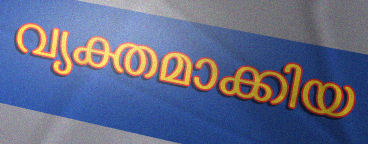
വ്യക്തമാക്കിയ